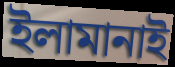
ইলামানাই